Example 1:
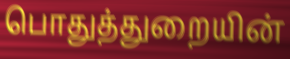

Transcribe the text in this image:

பொதுத்துறையின்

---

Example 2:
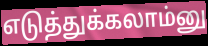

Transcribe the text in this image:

எடுத்துக்கலாம்னு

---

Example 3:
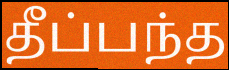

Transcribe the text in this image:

தீப்பந்த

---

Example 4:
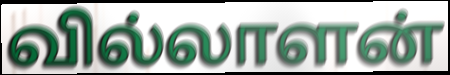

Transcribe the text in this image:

வில்லாளன்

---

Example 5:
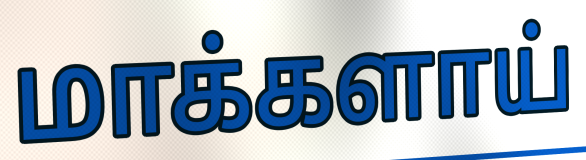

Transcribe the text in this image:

மாக்களாய்